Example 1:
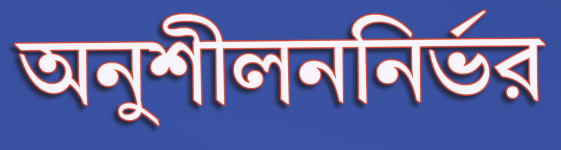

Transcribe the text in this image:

অনুশীলননির্ভর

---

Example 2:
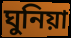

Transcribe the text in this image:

ঘুনিয়া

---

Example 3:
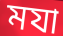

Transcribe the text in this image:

মযা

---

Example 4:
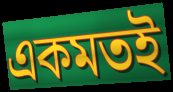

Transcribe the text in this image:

একমতই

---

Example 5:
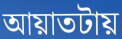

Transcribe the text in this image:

আয়াতটায়